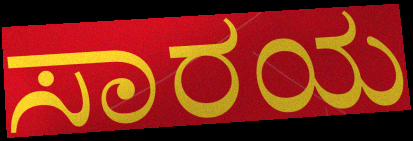
ಸಾರಯ